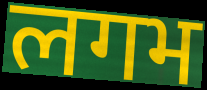
लगभ